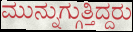
ಮುನ್ನುಗ್ಗುತ್ತಿದ್ದರು